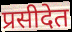
प्रसीदेत